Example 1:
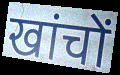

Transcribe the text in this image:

खांचों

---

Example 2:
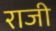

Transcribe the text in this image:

राजी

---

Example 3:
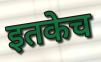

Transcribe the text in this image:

इतकेच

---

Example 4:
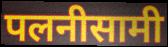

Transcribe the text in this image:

पलनीसामी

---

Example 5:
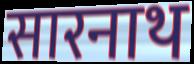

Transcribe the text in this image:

सारनाथ